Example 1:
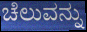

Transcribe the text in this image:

ಚೆಲುವನ್ನು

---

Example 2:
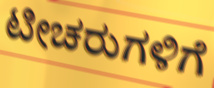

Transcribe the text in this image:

ಟೀಚರುಗಳಿಗೆ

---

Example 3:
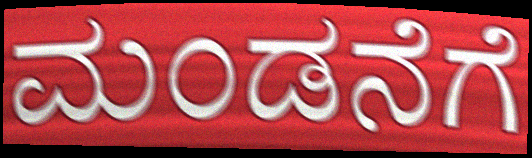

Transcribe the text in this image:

ಮಂಡನೆಗೆ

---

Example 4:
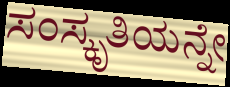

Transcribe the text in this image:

ಸಂಸ್ಕೃತಿಯನ್ನೇ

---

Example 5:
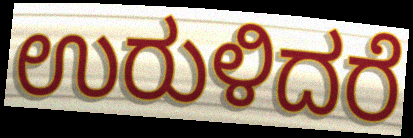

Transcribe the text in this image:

ಉರುಳಿದರೆ